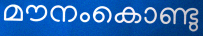
മൗനംകൊണ്ടു